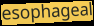
esophageal